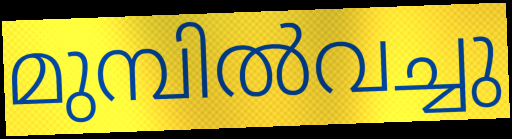
മുമ്പിൽവച്ചു